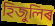
হিজুলিৰ